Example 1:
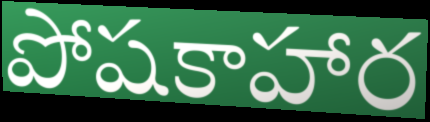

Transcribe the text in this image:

పోషకాహార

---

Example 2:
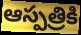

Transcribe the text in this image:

ఆస్పత్రికి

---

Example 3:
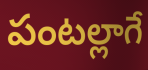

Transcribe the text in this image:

పంటల్లాగే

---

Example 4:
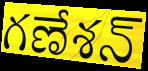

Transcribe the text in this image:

గణేశన్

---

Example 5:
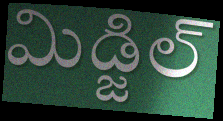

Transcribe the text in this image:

మిడ్జిల్